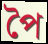
পৈ